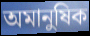
অমানুষিক